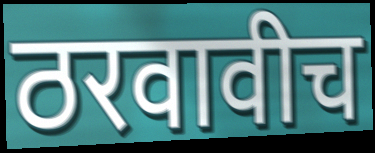
ठरवावीच